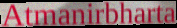
Atmanirbharta